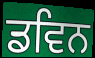
ਡਵਿਨ